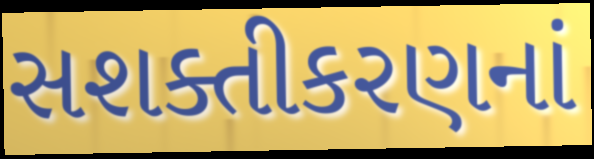
સશક્તીકરણનાં